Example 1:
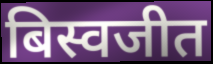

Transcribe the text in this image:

बिस्वजीत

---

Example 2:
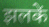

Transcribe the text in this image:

झलकें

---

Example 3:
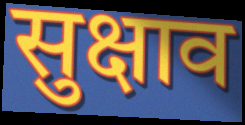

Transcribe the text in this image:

सुक्षाव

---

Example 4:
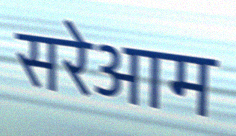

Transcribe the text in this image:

सरेआम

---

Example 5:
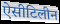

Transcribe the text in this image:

ऐसीटिलीन